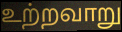
உற்றவாறு